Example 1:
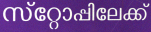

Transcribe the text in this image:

സ്‌റ്റോപ്പിലേക്ക്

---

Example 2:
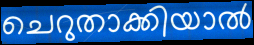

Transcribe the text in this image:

ചെറുതാക്കിയാൽ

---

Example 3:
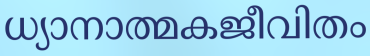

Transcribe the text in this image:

ധ്യാനാത്മകജീവിതം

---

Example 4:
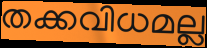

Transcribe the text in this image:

തക്കവിധമല്ല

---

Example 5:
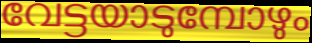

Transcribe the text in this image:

വേട്ടയാടുമ്പോഴും